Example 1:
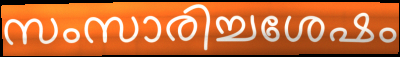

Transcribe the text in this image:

സംസാരിച്ചശേഷം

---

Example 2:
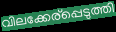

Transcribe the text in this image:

വിലക്കേര്പ്പെടുത്തി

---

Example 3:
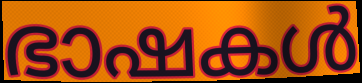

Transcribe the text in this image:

ഭാഷകൾ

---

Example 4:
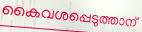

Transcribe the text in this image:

കൈവശപ്പെടുത്താന്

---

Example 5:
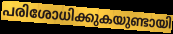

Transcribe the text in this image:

പരിശോധിക്കുകയുണ്ടായി